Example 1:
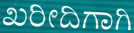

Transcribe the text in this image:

ಖರೀದಿಗಾಗಿ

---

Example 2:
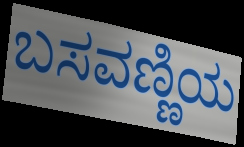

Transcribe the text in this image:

ಬಸವಣ್ಣಿಯ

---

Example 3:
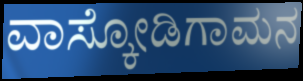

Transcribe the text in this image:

ವಾಸ್ಕೋಡಿಗಾಮನ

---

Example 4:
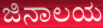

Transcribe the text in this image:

ಜಿನಾಲಯ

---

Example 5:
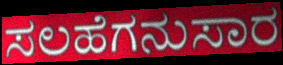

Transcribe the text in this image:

ಸಲಹೆಗನುಸಾರ